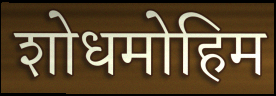
शोधमोहिम